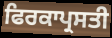
ਫਿਰਕਾਪ੍ਰਸਤੀ